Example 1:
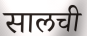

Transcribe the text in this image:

सालची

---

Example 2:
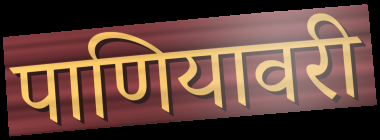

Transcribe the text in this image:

पाणियावरी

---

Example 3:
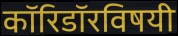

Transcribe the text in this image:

कॉरिडॉरविषयी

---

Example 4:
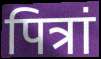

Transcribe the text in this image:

पित्रां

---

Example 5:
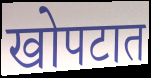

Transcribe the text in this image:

खोपटात